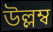
উল্লম্ব